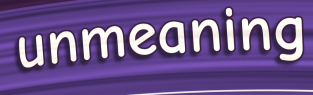
unmeaning